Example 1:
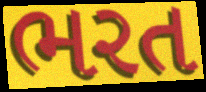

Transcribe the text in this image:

ભરત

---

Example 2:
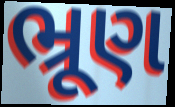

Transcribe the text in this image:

ભ્રૂણ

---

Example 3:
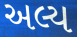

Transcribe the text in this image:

અલ્ય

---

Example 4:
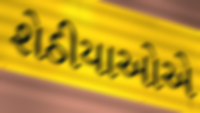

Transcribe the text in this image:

શેઠીયાઓએ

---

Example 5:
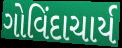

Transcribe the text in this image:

ગોવિંદાચાર્ય